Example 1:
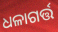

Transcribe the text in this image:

ଧଳାଗର୍ତ୍ତ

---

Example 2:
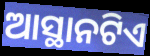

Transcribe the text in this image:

ଆସ୍ଥାନଟିଏ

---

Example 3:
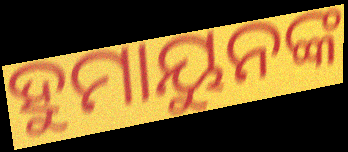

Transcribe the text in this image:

ହୁମାୟୁନଙ୍କ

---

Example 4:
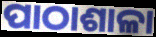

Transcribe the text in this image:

ପାଠାଶାଳା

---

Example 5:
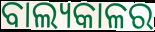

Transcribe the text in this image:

ବାଲ୍ୟକାଳର